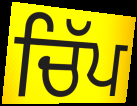
ਚਿੱਪ